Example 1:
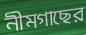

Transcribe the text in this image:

নীমগাছের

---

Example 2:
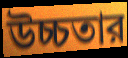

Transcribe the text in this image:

উচ্চতার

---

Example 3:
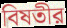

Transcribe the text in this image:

বিষতীর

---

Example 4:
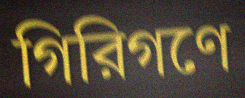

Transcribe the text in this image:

গিরিগণে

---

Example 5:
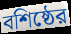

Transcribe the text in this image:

বশিষ্ঠের